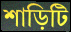
শাড়িটি